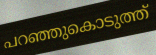
പറഞ്ഞുകൊടുത്ത്